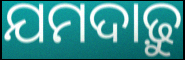
ଯମଦାଢ଼ୁ